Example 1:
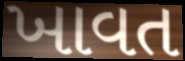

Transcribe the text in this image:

ખાવત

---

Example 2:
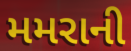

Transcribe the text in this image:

મમરાની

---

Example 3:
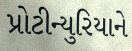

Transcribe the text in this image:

પ્રોટીન્યુરિયાને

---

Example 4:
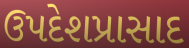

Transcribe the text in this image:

ઉપદેશપ્રાસાદ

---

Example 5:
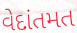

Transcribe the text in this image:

વેદાંતમત